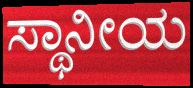
ಸ್ಥಾನೀಯ